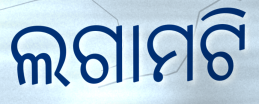
ଲଗାମଟି